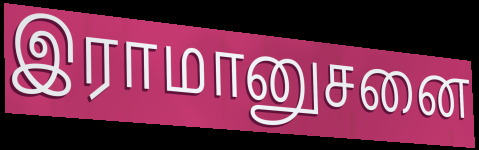
இராமானுசனை